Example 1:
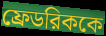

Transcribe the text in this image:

ফ্রেডরিককে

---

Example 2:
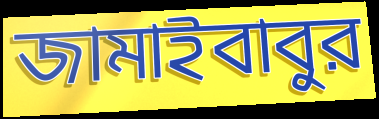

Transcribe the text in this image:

জামাইবাবুর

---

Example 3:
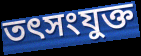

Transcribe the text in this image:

তৎসংযুক্ত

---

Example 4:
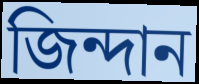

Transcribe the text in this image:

জিন্দান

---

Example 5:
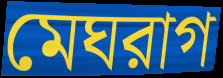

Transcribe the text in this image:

মেঘরাগ